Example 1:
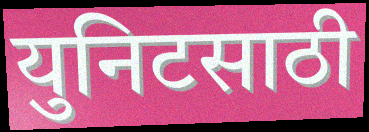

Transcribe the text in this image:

युनिटसाठी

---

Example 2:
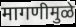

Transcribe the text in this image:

मागणीमुळे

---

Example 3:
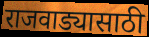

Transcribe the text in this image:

राजवाड्यासाठी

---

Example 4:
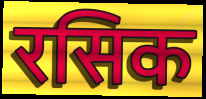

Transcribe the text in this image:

रसिक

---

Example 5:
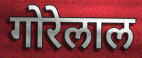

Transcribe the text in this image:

गोरेलाल